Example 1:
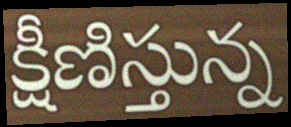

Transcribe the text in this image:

క్షీణిస్తున్న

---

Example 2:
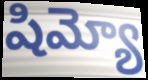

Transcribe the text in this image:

షిమ్యో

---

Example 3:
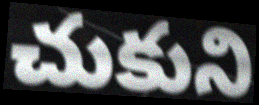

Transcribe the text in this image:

చుకుని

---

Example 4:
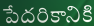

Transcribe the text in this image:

పేదరికానికి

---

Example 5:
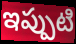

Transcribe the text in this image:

ఇప్పుటి